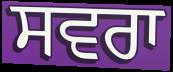
ਸਵਰਾ